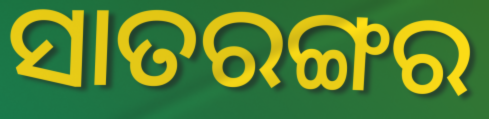
ସାତରଙ୍ଗର